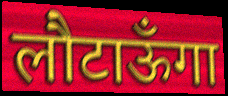
लौटाऊँगा